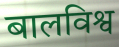
बालविश्व